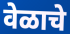
वेळाचे